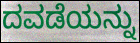
ದವಡೆಯನ್ನು